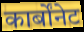
कार्बोंनेट